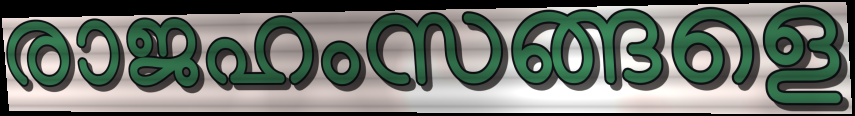
രാജഹംസങ്ങളെ